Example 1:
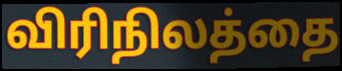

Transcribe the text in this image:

விரிநிலத்தை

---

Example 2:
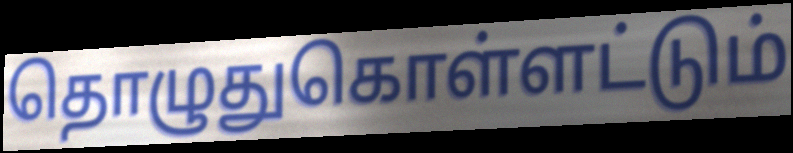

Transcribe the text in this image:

தொழுதுகொள்ளட்டும்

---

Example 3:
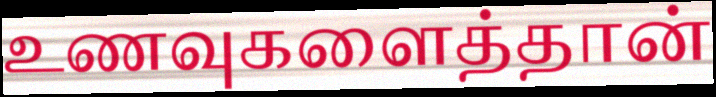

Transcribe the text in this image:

உணவுகளைத்தான்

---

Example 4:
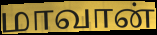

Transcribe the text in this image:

மாவான்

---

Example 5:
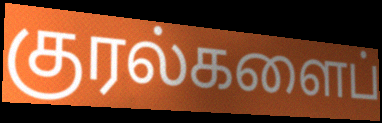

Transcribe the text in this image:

குரல்களைப்